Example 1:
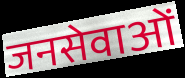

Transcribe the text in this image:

जनसेवाओं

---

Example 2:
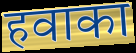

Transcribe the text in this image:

हवाका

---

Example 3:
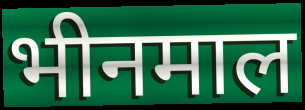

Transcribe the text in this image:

भीनमाल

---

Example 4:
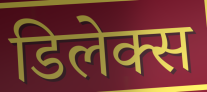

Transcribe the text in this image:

डिलेक्स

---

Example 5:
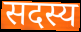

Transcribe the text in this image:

सदस्य